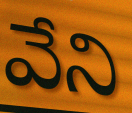
వేని